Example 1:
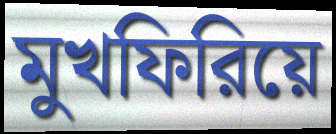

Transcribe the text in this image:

মুখফিরিয়ে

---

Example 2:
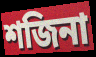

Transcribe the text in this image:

শজিনা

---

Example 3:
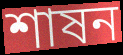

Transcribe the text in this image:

শাষন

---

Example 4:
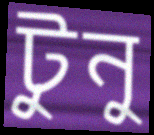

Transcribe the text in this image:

টুনু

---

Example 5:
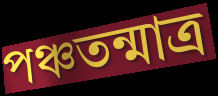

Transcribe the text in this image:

পঞ্চতন্মাত্র